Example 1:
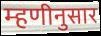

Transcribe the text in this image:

म्हणीनुसार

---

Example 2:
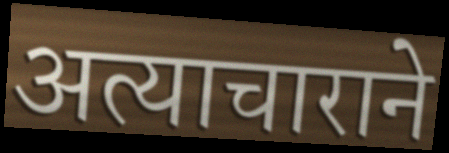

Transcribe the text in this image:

अत्याचाराने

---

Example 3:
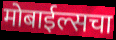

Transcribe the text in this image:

मोबाईल्सचा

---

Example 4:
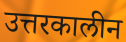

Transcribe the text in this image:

उत्तरकालीन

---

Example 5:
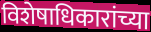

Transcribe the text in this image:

विशेषाधिकारांच्या